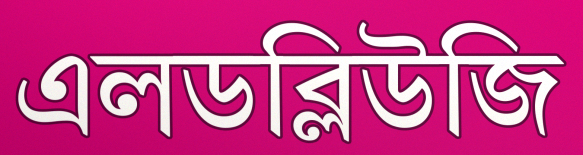
এলডব্লিউজি